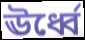
ঊর্ধ্বে